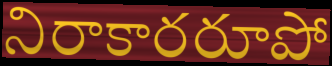
నిరాకారరూపో